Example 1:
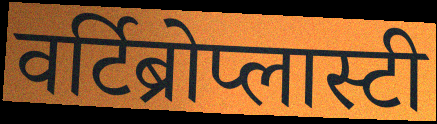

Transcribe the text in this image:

वर्टिब्रोप्लास्टी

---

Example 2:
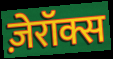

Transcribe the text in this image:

ज़ेरॉक्स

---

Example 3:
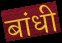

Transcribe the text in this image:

बांधी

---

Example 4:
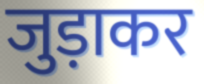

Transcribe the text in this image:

जुड़ाकर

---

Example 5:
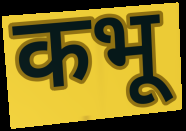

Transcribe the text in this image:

कभू